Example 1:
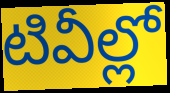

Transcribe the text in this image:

టివీల్లో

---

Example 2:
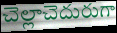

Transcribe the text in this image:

చెల్లాచెదురుగా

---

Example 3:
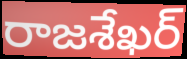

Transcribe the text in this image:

రాజశేఖర్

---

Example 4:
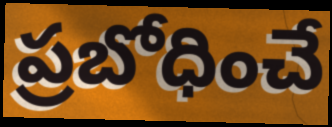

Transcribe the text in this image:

ప్రబోధించే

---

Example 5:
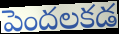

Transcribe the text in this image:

పెందలకడ